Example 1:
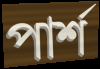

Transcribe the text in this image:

পার্শ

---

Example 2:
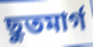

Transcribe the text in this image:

ছুতমার্গ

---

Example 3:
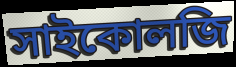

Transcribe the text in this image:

সাইকোলজি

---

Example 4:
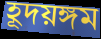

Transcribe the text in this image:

হূদয়ঙ্গম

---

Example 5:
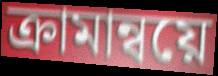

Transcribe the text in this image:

ক্রামান্বয়ে